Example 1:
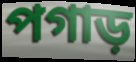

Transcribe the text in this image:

পগাড়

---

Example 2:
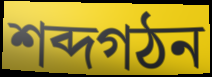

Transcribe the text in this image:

শব্দগঠন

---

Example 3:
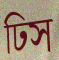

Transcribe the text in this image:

ঢিস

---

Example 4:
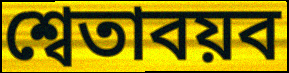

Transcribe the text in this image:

শ্বেতাবয়ব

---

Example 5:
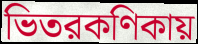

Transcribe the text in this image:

ভিতরকণিকায়